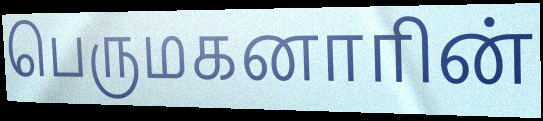
பெருமகனாரின்